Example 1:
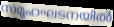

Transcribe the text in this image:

സമൂഹഘടനയിൽ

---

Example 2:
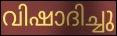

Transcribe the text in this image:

വിഷാദിച്ചു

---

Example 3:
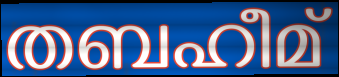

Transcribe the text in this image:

തബഹീമ്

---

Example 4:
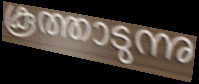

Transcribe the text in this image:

കൂത്താടുന്നു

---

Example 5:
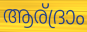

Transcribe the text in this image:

ആര്ദ്രാം